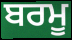
ਬਰਮੂ